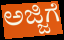
ಅಜ್ಜಿಗೆ